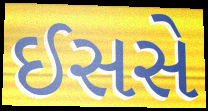
ઈસસે